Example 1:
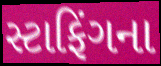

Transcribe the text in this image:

સ્ટાફિંગના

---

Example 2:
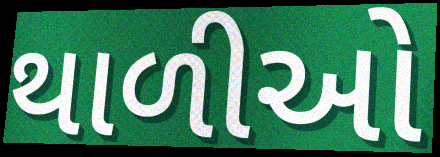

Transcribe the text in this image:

થાળીઓ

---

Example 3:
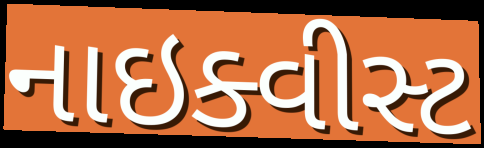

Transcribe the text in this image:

નાઇક્વીસ્ટ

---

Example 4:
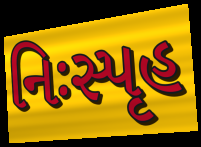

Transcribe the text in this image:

નિઃસ્પૃહ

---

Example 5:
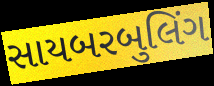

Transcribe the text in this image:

સાયબરબુલિંગ